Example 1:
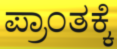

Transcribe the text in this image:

ಪ್ರಾಂತಕ್ಕೆ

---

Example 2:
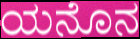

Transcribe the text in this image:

ಯನೊನ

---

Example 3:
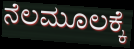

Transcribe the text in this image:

ನೆಲಮೂಲಕ್ಕೆ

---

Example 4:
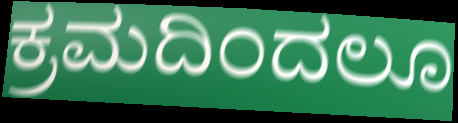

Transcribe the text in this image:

ಕ್ರಮದಿಂದಲೂ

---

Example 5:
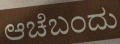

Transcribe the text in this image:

ಆಚೆಬಂದು